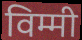
विम्मी